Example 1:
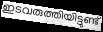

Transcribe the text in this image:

ഇടവരുത്തിയിട്ടുണ്ട്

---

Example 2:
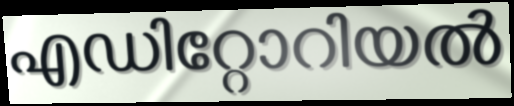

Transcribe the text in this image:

എഡിറ്റോറിയൽ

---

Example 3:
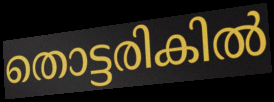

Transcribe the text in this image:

തൊട്ടരികിൽ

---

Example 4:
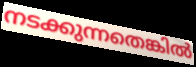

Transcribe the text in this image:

നടക്കുന്നതെങ്കിൽ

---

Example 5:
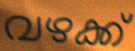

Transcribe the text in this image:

വഴക്ക്